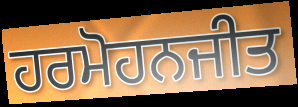
ਹਰਮੋਹਨਜੀਤ